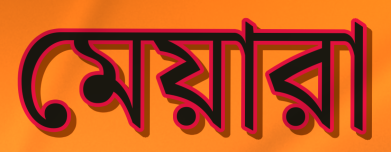
মেয়ারা